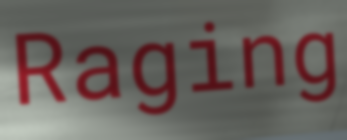
Raging